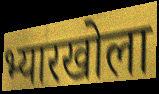
भ्यारखोला